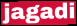
jagadi